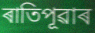
ৰাতিপূৱাৰ